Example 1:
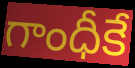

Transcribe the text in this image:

గాంధీకే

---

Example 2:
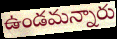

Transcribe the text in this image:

ఉండమన్నారు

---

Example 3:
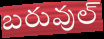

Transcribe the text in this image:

బరువుల్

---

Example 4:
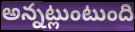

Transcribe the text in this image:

అన్నట్లుంటుంది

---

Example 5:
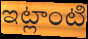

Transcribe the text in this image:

ఇట్లాంటి